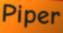
Piper